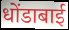
धोंडाबाई